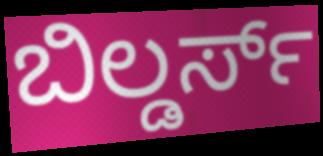
ಬಿಲ್ಡರ್ಸ್